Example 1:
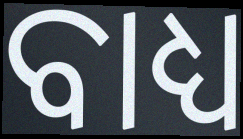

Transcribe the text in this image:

ବାଧ୍ୟ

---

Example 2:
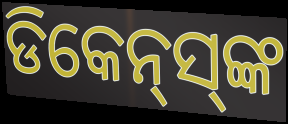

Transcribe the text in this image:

ଡିକେନ୍‌ସ୍‌ଙ୍କ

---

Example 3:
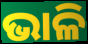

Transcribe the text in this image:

ଭାଳି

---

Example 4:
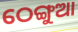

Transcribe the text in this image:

ଠେଙ୍ଗୁଆ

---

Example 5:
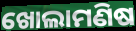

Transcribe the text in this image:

ଖୋଲାମଣିଷ